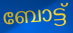
ബോട്ട്